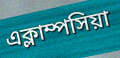
এক্লাম্পসিয়া